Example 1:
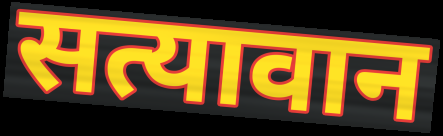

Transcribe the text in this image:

सत्यावान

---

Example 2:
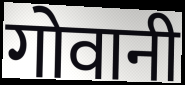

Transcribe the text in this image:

गोवानी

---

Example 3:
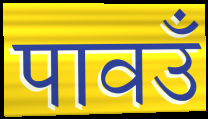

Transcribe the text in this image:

पावउँ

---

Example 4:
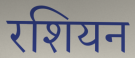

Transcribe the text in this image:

रशियन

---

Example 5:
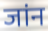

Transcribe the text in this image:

जांन